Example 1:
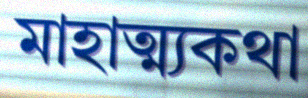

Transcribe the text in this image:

মাহাত্ম্যকথা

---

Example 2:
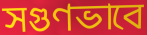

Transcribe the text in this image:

সগুণভাবে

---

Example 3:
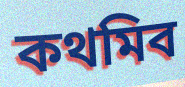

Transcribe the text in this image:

কথমিব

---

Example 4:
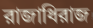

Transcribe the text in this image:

রাজাধিরাজ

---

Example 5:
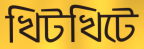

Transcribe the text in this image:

খিটখিটে